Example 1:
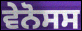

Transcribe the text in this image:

ਵੇਨੋਸਸ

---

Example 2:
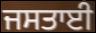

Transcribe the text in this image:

ਜਸਤਾਈ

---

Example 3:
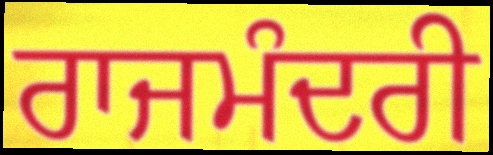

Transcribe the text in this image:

ਰਾਜਮੰਦਰੀ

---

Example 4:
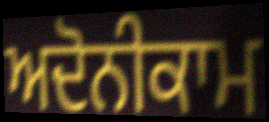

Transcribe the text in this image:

ਅਦੋਨੀਕਾਮ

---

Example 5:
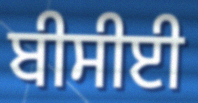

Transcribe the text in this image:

ਬੀਸੀਈ